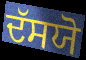
ਦੱਸਯੋ